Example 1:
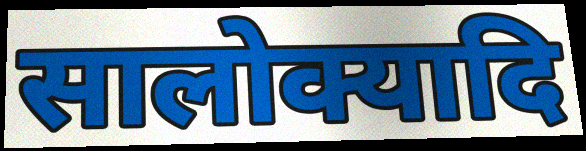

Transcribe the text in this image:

सालोक्यादि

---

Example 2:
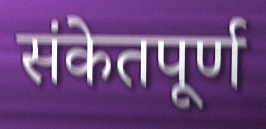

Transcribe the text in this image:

संकेतपूर्ण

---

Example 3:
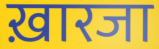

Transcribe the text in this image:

ख़ारजा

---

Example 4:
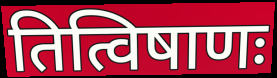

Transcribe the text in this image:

तित्विषाणः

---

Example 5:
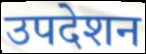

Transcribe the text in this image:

उपदेशन